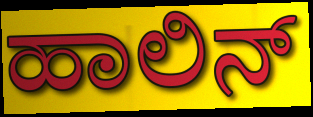
ಹಾಲಿನ್